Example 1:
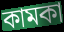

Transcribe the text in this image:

কামকা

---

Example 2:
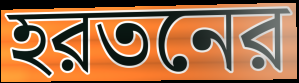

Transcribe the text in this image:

হরতনের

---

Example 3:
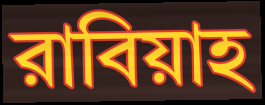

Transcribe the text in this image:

রাবিয়াহ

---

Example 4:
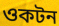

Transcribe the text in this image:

ওকটন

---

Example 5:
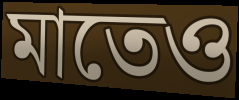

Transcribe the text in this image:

মাতেও